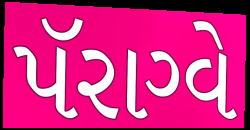
પૅરાગ્વે